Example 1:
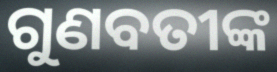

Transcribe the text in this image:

ଗୁଣବତୀଙ୍କ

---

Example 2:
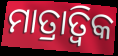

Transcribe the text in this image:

ମାତ୍ରାତ୍ଵିକ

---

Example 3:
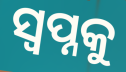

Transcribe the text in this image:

ସ୍ଵପ୍ନକୁ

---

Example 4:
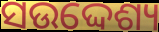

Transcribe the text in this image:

ସଉଦ୍ଦେଶ୍ୟ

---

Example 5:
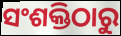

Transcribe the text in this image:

ସଂଶକ୍ତିଠାରୁ